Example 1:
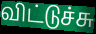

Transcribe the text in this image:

விட்டுச்சு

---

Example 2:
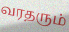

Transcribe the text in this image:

வரதரும்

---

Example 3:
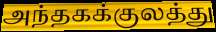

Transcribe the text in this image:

அந்தகக்குலத்து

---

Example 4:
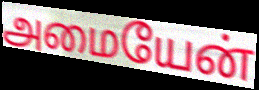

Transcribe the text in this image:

அமையேன்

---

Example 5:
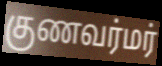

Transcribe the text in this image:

குணவர்மர்